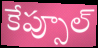
కేప్సూల్